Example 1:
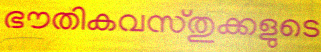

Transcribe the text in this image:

ഭൗതികവസ്തുക്കളുടെ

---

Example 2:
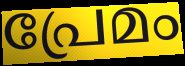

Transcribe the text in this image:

പ്രേമം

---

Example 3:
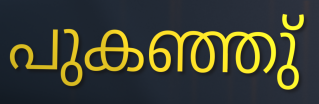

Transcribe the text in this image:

പുകഞ്ഞു്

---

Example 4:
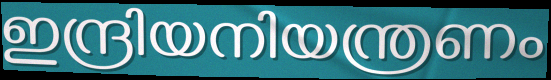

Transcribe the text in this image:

ഇന്ദ്രിയനിയന്ത്രണം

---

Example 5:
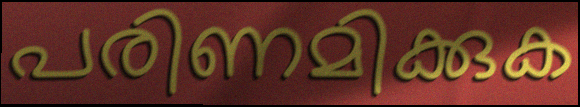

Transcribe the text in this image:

പരിണമിക്കുക